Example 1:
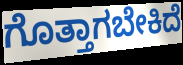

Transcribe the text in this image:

ಗೊತ್ತಾಗಬೇಕಿದೆ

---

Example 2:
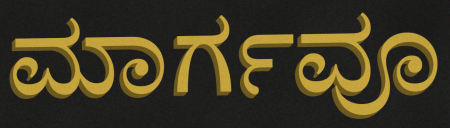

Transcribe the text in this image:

ಮಾರ್ಗವೂ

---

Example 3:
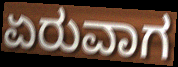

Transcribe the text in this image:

ಏರುವಾಗ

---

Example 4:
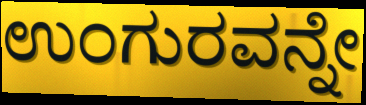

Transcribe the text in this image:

ಉಂಗುರವನ್ನೇ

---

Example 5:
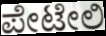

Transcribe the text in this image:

ಪೇಟೇಲಿ